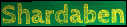
Shardaben